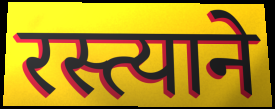
रस्त्याने